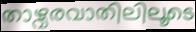
താഴ്വരവാതിലിലൂടെ